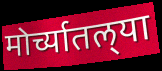
मोर्च्यातल्या